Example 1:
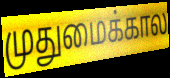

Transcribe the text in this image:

முதுமைக்கால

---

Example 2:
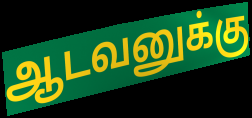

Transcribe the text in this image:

ஆடவனுக்கு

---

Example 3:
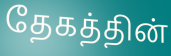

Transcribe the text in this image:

தேகத்தின்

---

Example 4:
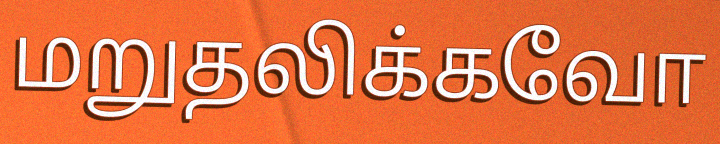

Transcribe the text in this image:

மறுதலிக்கவோ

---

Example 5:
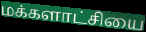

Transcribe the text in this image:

மக்களாட்சியை